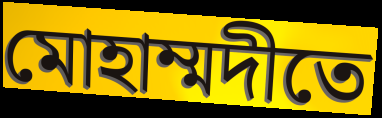
মোহাম্মদীতে